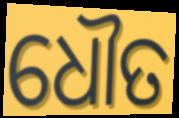
ଧୌତ